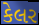
કેલર